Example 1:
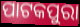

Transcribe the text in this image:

ପାଟକପୁରା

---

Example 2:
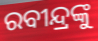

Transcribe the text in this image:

ରବୀନ୍ଦ୍ରଙ୍କୁ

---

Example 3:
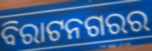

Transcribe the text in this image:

ବିରାଟନଗରର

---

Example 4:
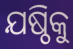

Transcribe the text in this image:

ଯଷ୍ଠିକୁ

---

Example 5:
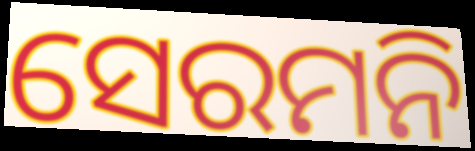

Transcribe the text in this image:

ସେରମନି